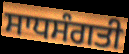
ਸਾਧਸੰਗਤੀ